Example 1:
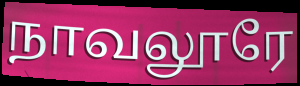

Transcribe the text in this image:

நாவலூரே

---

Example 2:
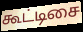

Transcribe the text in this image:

கூட்டிசை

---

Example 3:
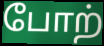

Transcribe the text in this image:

போற்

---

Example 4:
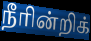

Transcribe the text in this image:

நீரின்றிக்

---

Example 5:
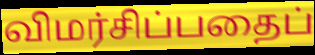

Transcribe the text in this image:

விமர்சிப்பதைப்